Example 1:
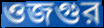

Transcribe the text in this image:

ওজগুর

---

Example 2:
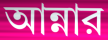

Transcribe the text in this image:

আন্নার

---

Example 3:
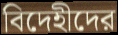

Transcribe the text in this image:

বিদেহীদের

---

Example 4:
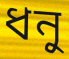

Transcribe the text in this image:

ধনু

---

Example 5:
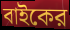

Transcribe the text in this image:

বাইকের